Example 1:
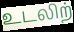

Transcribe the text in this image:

உடலிற்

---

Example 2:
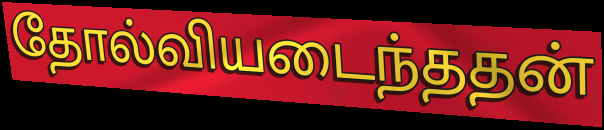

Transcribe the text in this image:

தோல்வியடைந்ததன்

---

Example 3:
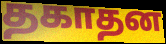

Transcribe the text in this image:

தகாதன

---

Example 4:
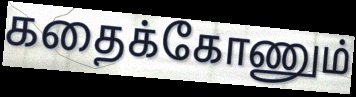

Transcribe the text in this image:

கதைக்கோணும்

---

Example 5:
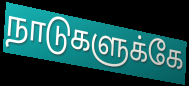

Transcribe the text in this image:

நாடுகளுக்கே